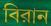
বিরান